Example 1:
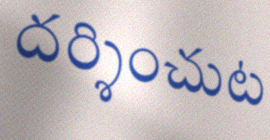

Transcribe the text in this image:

దర్శించుట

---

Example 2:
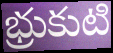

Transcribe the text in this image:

భ్రుకుటి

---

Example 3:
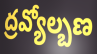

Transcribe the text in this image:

ద్రవ్యోల్బణ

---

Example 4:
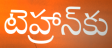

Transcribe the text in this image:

టెహ్రాన్‌కు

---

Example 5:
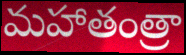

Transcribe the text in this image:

మహాతంత్రా